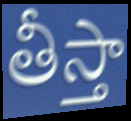
తీస్తా